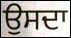
ਉਸਦਾ